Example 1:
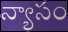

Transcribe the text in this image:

న్యాసం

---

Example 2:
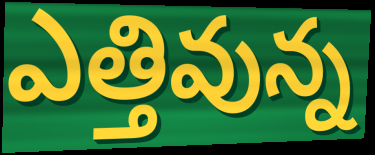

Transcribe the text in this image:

ఎత్తివున్న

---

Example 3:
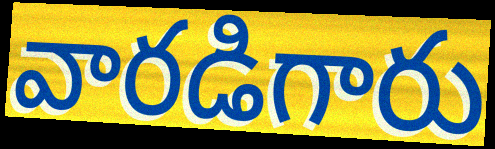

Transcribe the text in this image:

వారడిగారు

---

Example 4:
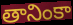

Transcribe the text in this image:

తానింకా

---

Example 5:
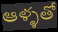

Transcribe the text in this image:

ఆళ్ళతో